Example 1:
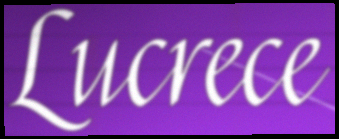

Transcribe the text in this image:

Lucrece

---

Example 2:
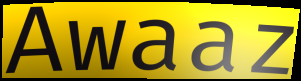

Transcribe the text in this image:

Awaaz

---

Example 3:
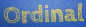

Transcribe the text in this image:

Ordinal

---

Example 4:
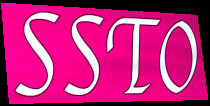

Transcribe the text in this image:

SSTO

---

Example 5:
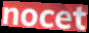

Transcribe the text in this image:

nocet